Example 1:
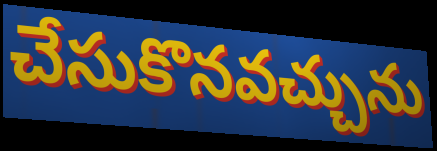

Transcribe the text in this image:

చేసుకొనవచ్చును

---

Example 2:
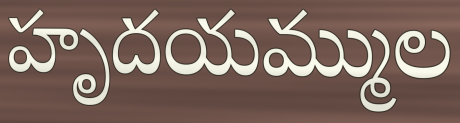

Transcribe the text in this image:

హృదయమ్ముల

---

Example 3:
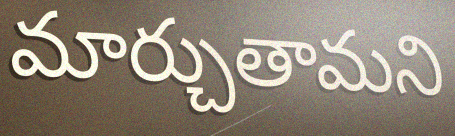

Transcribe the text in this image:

మార్చుతామని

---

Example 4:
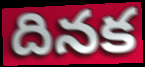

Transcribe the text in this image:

దినక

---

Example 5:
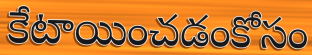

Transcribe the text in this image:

కేటాయించడంకోసం